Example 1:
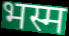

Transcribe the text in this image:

भस्म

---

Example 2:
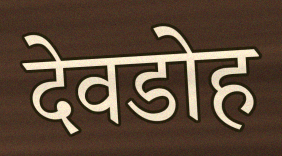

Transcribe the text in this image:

देवडोह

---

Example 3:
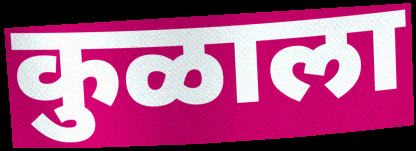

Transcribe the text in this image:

कुळाला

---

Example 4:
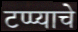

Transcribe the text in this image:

टप्प्याचे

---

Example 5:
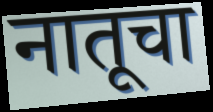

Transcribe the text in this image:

नातूचा